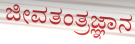
ಜೀವತಂತ್ರಜ್ಞಾನ